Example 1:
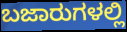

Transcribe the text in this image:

ಬಜಾರುಗಳಲ್ಲಿ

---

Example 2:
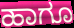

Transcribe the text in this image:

ಹಾಗೂ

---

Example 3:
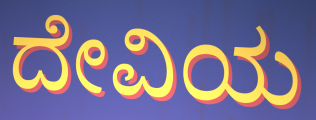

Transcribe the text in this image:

ದೇವಿಯ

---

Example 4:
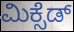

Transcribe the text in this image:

ಮಿಕ್ಸೆಡ್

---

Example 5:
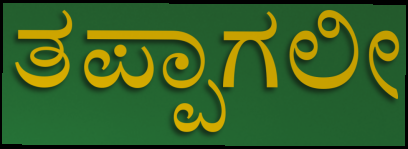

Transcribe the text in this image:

ತಪ್ಪಾಗಲೀ